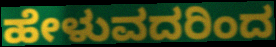
ಹೇಳುವದರಿಂದ